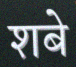
शबे